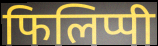
फिलिप्पी